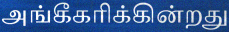
அங்கீகரிக்கின்றது